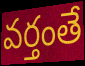
వర్తంతే